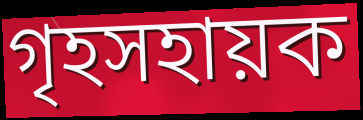
গৃহসহায়ক